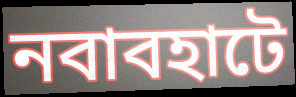
নবাবহাটে